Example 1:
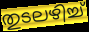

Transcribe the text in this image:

തുടലഴിച്ച്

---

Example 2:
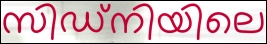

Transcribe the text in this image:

സിഡ്നിയിലെ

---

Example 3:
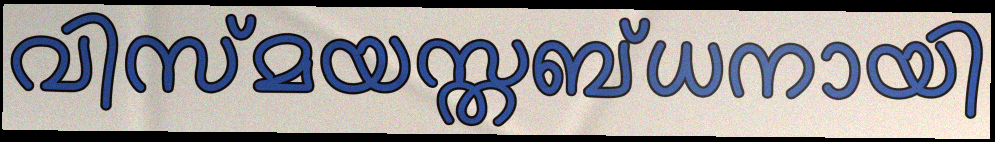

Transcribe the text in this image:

വിസ്മയസ്തബ്ധനായി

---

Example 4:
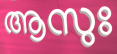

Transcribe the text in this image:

ആസുഃ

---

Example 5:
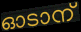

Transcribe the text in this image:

ഓടാന്